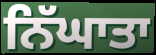
ਨਿੱਘਾਤਾ